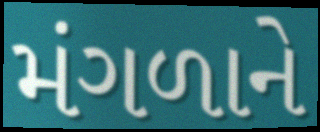
મંગળાને